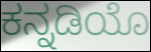
ಕನ್ನಡಿಯೊ